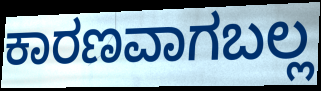
ಕಾರಣವಾಗಬಲ್ಲ